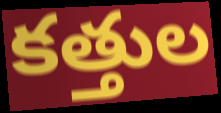
కత్తుల